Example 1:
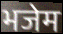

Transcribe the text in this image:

भजेम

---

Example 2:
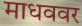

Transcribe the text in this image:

माधववर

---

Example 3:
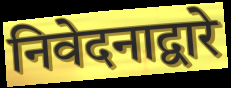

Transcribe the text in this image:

निवेदनाद्वारे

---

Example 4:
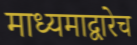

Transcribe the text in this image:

माध्यमाद्वारेच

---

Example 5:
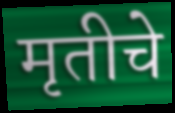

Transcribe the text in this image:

मृतीचे